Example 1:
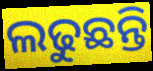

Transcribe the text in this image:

ଲଢୁଛନ୍ତି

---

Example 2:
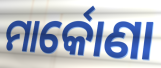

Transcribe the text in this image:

ମାର୍କୋଣା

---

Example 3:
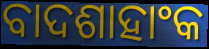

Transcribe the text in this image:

ବାଦଶାହାଂକ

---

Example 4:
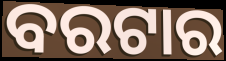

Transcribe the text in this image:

ବରଟାର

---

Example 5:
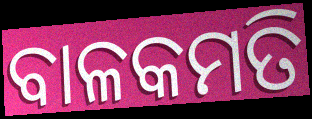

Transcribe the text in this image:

ବାଳକମତି